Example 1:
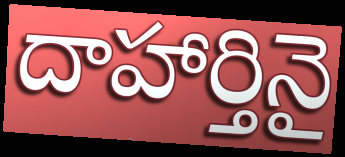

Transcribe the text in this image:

దాహార్తినై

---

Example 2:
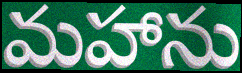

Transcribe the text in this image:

మహాను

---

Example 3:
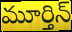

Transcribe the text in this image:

మూర్తిన్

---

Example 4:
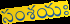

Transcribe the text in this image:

సంశయః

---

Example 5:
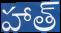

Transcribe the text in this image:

హాత్